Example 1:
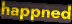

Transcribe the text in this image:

happned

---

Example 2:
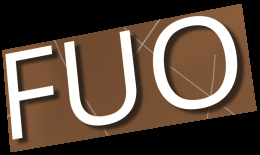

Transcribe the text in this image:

FUO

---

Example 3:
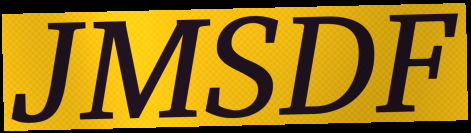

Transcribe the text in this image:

JMSDF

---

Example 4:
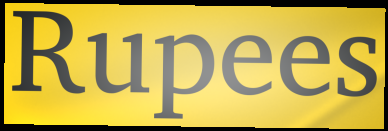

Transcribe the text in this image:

Rupees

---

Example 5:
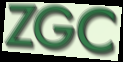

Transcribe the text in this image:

ZGC